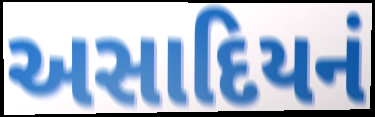
અસાદિયનં